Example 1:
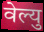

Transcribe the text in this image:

वेल्यु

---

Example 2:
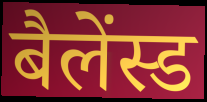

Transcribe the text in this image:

बैलेंस्ड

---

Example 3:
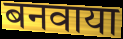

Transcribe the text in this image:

बनवाया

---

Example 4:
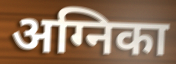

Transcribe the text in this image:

अग्निका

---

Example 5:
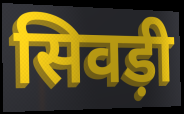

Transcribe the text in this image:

सिवड़ी